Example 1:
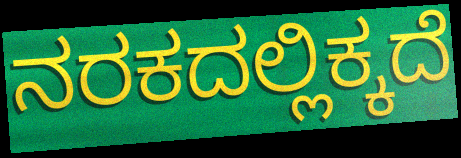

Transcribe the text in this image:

ನರಕದಲ್ಲಿಕ್ಕದೆ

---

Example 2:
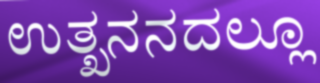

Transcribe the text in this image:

ಉತ್ಖನನದಲ್ಲೂ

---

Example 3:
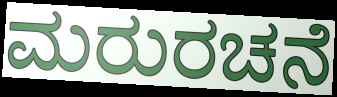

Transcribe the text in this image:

ಮರುರಚನೆ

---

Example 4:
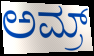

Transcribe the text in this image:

ಅಮ್ರ್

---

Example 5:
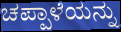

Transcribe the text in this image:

ಚಪ್ಪಾಳೆಯನ್ನು